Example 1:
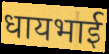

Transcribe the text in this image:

धायभाई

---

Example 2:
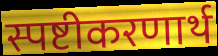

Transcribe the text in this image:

स्पष्टीकरणार्थ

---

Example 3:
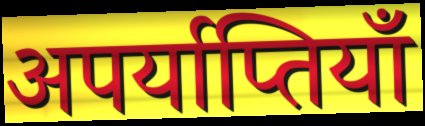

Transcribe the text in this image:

अपर्याप्तियाँ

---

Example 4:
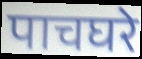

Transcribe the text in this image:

पाचघरे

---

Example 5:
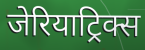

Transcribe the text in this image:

जेरियाट्रिक्स